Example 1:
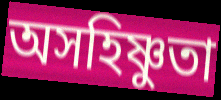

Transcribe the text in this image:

অসহিষ্ণুতা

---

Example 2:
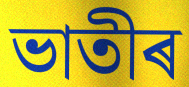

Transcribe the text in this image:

ভাতীৰ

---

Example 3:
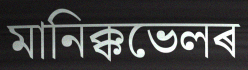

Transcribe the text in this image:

মানিক্কভেলৰ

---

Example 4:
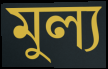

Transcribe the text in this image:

মুল্য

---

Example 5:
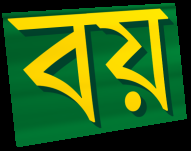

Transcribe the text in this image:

বয়